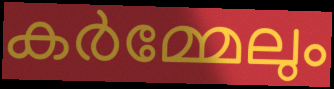
കർമ്മേലും